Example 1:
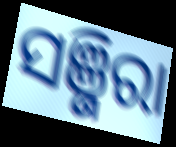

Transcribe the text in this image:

ସଞ୍ଜିରା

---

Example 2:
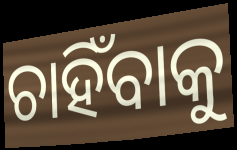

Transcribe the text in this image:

ଚାହିଁବାକୁ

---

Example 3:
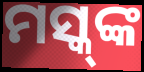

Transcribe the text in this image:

ମସ୍କ୍‌ଙ୍କ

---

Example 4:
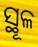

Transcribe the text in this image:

ସ୍ଥୂଳ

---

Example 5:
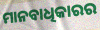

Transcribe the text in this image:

ମାନବାଧିକାରର